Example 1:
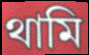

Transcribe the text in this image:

থামি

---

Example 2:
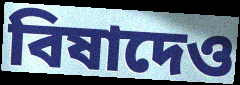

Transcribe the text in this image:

বিষাদেও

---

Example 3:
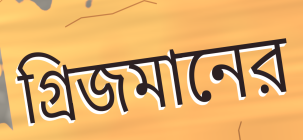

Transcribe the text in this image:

গ্রিজমানের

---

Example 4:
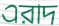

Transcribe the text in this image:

এরাদ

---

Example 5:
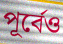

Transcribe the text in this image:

পূর্বেও